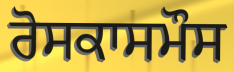
ਰੋਸਕਾਸਮੌਸ